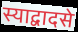
स्याद्वादसे